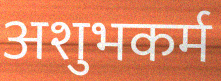
अशुभकर्म